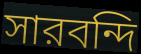
সারবন্দি